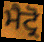
ਮੈਟ੍ਰੋ